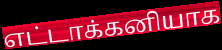
எட்டாக்கனியாக